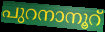
പുറനാനൂറ്